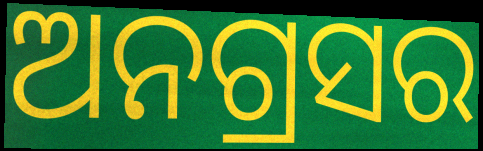
ଅନଗ୍ରସର